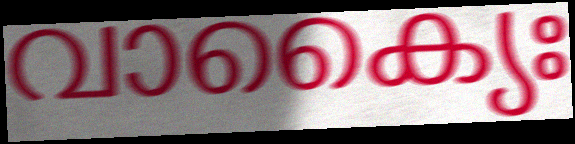
വാക്യൈഃ